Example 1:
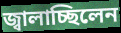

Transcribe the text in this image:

জ্বালাচ্ছিলেন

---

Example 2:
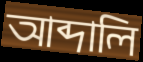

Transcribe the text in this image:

আব্দালি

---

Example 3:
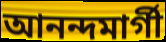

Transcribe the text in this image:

আনন্দমার্গী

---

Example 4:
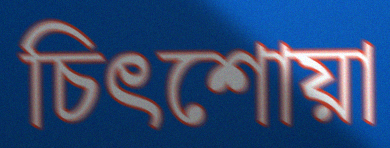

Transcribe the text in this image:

চিৎশোয়া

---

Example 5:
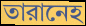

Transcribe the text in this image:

তারানেহ